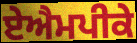
ਏਐਮਪੀਕੇ